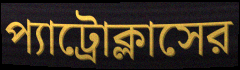
প্যাট্রোক্লাসের